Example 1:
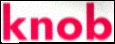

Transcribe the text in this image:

knob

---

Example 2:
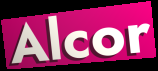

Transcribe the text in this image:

Alcor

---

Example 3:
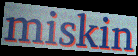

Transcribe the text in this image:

miskin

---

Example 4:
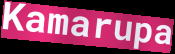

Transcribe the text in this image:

Kamarupa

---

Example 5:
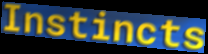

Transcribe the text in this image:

Instincts